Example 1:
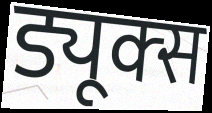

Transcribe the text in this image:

ड्यूक्‍स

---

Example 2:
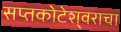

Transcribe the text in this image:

सप्तकोटेश्वराचा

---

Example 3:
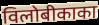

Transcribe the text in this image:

विलोबीकाका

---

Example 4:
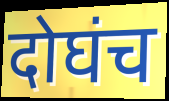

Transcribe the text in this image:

दोघंच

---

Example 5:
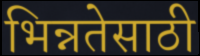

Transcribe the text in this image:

भिन्नतेसाठी